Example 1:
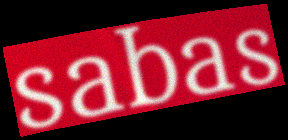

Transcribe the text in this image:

sabas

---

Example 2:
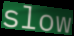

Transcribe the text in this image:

slow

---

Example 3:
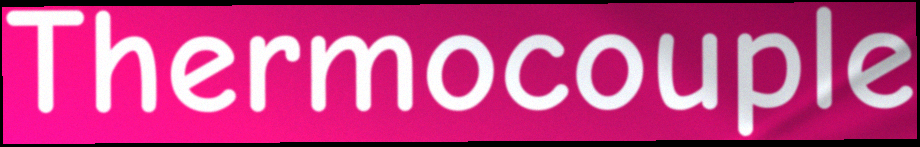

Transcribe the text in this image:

Thermocouple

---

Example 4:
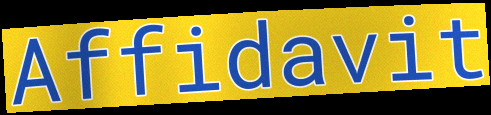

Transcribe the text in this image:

Affidavit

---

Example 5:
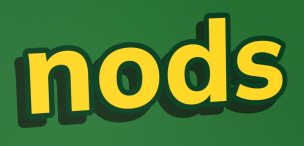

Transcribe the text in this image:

nods